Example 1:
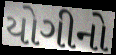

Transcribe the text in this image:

યોગીનો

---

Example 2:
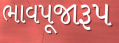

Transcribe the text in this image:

ભાવપૂજારૂપ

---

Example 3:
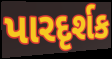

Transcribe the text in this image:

પારદૃર્શક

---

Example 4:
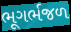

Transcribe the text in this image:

ભૂગર્ભજળ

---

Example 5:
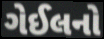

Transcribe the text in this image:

ગેઈલનો